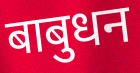
बाबुधन